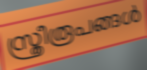
സ്ത്രീരൂപങ്ങൾ